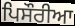
ਪਿਸੌਰੀਆ